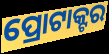
ପ୍ରୋଟାକ୍ଟର